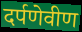
दर्पणेवीण